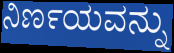
ನಿರ್ಣಯವನ್ನು